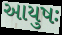
આયુષઃ